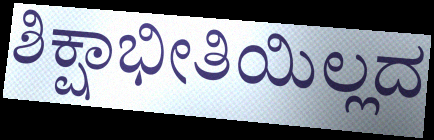
ಶಿಕ್ಷಾಭೀತಿಯಿಲ್ಲದ